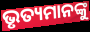
ଭୃତ୍ୟମାନଙ୍କୁ